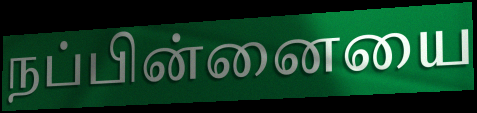
நப்பின்னையை